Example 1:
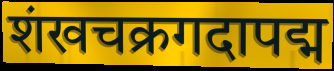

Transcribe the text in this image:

शंखचक्रगदापद्म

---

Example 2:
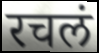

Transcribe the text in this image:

रचलं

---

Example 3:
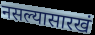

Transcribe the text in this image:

नसल्यासारखं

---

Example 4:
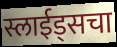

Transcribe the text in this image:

स्लाईड्सचा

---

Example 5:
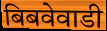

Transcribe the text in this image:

बिबवेवाडी